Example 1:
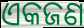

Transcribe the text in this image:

ଏକଜଣ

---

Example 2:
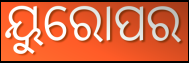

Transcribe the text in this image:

ୟୁରୋପର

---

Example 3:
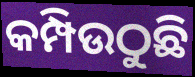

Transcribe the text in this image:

କମ୍ପିଉଠୁଛି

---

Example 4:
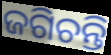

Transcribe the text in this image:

ଜଗିଚନ୍ତି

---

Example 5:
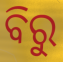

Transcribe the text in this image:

ବିରୁ